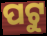
ପଟୁ